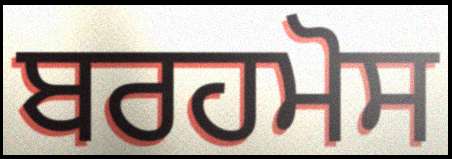
ਬਰਹਮੋਸ